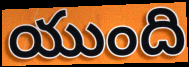
యుంది